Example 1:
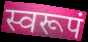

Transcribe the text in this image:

स्वरूपं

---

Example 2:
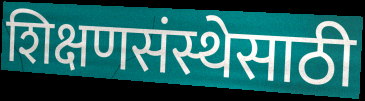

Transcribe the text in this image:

शिक्षणसंस्थेसाठी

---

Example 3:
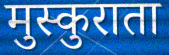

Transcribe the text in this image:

मुस्कुराता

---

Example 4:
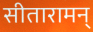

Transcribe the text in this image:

सीतारामन्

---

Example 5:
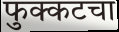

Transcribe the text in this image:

फुक्कटचा